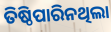
ତିଷ୍ଠିପାରିନଥିଲା